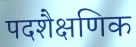
पदशैक्षणिक